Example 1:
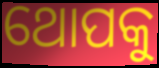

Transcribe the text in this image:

ଥୋପକୁ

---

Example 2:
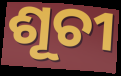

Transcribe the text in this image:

ଶୂଚୀ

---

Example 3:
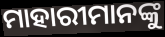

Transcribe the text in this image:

ମାହାରୀମାନଙ୍କୁ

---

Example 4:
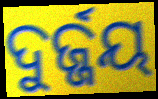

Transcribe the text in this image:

ଦୁର୍ଜ୍ଜୟ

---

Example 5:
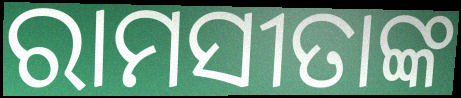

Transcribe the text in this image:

ରାମସୀତାଙ୍କ